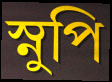
স্নুপি